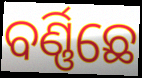
ବର୍ଣ୍ଣିଛେ